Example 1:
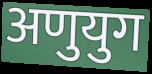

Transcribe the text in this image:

अणुयुग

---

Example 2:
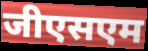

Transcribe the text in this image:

जीएसएम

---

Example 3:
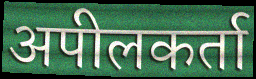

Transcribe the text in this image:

अपीलकर्ता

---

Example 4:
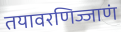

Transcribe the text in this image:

तयावरणिज्जाणं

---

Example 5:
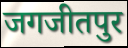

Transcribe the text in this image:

जगजीतपुर